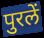
पुरलें